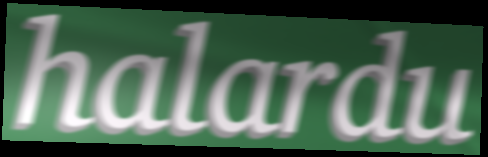
halardu